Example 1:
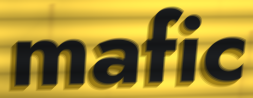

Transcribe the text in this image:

mafic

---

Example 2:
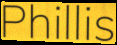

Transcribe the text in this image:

Phillis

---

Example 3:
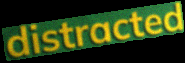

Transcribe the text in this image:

distracted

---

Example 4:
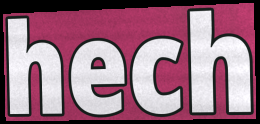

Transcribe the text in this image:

hech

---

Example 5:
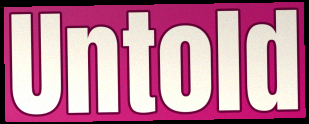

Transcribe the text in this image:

Untold